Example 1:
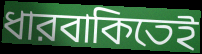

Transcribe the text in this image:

ধারবাকিতেই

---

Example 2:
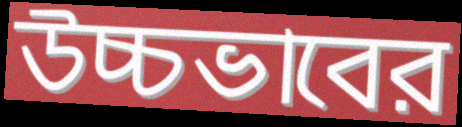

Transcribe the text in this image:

উচ্চভাবের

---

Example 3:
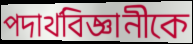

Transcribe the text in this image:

পদার্থবিজ্ঞানীকে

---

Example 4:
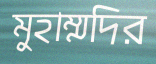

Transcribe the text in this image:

মুহাম্মদির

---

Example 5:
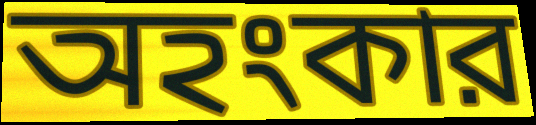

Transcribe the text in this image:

অহংকার